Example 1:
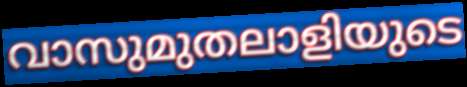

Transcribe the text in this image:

വാസുമുതലാളിയുടെ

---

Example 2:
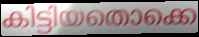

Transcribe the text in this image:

കിട്ടിയതൊക്കെ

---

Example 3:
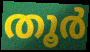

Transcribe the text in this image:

തൂർ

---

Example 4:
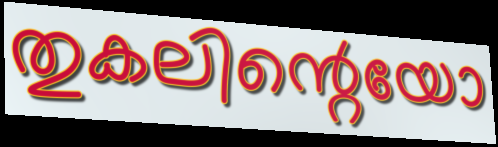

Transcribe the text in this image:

തുകലിന്റെയോ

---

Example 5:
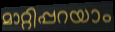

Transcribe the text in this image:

മാറ്റിപ്പറയാം